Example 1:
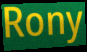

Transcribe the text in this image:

Rony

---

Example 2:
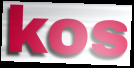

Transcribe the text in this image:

kos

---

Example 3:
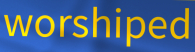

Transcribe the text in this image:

worshiped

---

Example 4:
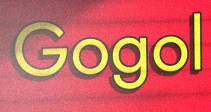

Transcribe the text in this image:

Gogol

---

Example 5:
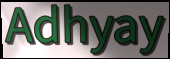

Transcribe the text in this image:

Adhyay